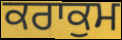
ਕਰਾਕੁਮ